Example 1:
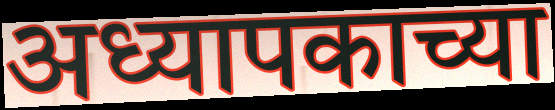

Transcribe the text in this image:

अध्यापकाच्या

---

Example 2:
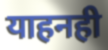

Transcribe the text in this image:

याहनही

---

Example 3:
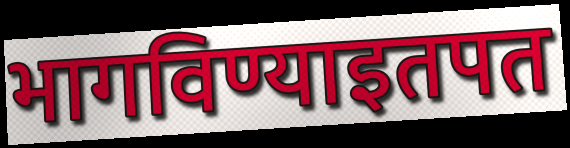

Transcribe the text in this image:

भागविण्याइतपत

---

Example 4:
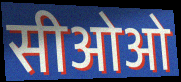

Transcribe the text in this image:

सीओओ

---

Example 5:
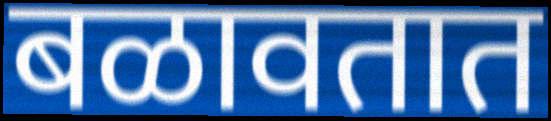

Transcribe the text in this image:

बळावतात